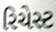
રિચેસ્ટ